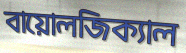
বায়োলজিক্যাল